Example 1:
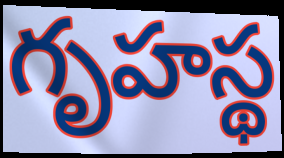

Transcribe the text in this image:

గృహస్థ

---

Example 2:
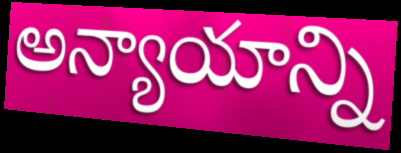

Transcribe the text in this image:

అన్యాయాన్ని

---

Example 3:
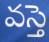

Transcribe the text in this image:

వస్తె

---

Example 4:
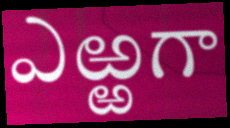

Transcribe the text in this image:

ఎఱ్ఱగా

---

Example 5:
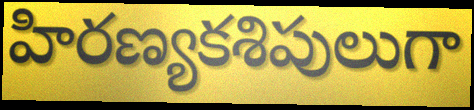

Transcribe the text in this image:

హిరణ్యకశిపులుగా